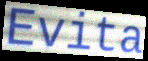
Evita